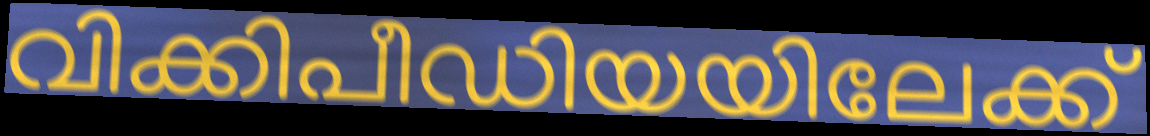
വിക്കിപീഡിയയിലേക്ക്